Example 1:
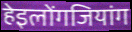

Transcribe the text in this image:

हेइलोंगजियांग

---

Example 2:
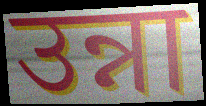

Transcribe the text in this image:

उन्ना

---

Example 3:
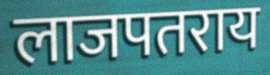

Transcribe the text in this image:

लाजपतराय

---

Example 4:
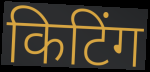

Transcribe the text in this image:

किटिंग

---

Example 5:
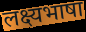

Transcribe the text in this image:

लक्ष्यभाषा